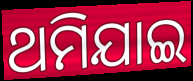
ଥମିଯାଇ